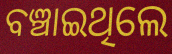
ବଞ୍ଚାଇଥିଲେ